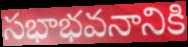
సభాభవనానికి